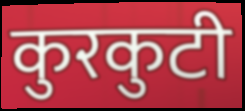
कुरकुटी